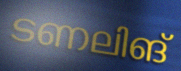
ടണലിങ്